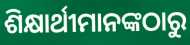
ଶିକ୍ଷାର୍ଥୀମାନଙ୍କଠାରୁ